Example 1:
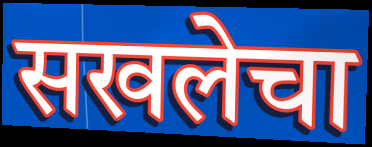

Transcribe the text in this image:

सखलेचा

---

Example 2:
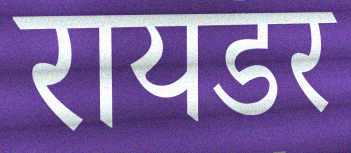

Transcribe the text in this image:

रायडर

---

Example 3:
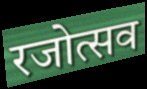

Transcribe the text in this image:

रजोत्सव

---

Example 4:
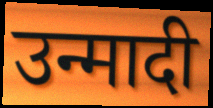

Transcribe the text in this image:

उन्मादी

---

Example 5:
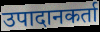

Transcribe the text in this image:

उपादानकर्ता